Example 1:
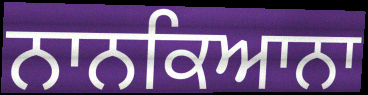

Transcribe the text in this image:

ਨਾਨਕਿਆਨਾ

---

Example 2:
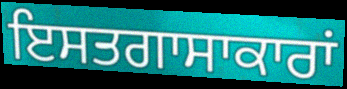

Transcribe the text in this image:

ਇਸਤਗਾਸਾਕਾਰਾਂ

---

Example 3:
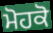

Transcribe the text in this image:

ਮੋਹਕੋ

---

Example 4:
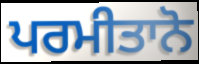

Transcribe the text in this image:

ਪਰਮੀਤਾਨੋ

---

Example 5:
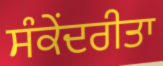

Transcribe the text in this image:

ਸੰਕੇਂਦਰੀਤਾ